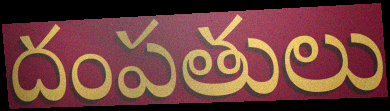
దంపతులు